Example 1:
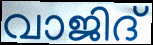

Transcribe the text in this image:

വാജിദ്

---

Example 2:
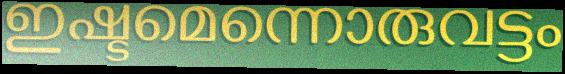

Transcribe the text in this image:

ഇഷ്ടമെന്നൊരുവട്ടം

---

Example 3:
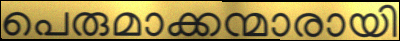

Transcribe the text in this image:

പെരുമാക്കന്മാരായി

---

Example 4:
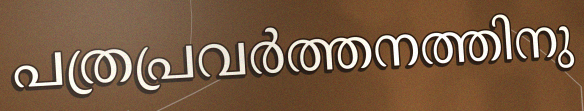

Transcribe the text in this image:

പത്രപ്രവർത്തനത്തിനു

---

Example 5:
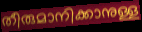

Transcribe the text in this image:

തീരുമാനിക്കാനുള്ള